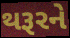
થરૂરને